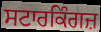
ਸਟਾਰਕਿੰਗਜ਼